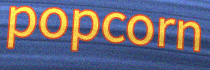
popcorn